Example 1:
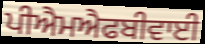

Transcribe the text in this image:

ਪੀਐਮਐਫਬੀਵਾਈ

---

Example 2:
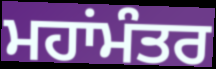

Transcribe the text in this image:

ਮਹਾਂਮੰਤਰ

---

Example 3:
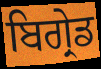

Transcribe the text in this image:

ਬਿਗ੍ਰੇਡ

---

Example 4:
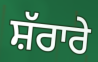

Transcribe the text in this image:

ਸ਼ੱਰਾਰੇ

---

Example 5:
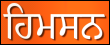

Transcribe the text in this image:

ਹਿਮਸਨ